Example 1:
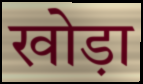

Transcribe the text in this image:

खोड़ा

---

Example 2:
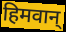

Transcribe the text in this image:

हिमवान्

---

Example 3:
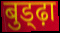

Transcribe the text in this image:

बुड्ढ़ा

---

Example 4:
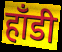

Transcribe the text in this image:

हाँडी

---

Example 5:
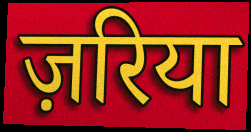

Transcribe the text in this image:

ज़रिया